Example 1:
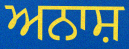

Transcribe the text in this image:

ਅਨਾਸ਼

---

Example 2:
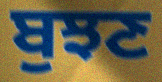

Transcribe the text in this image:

ਬੁਝਣ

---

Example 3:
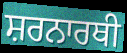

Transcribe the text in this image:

ਸ਼ਰਨਾਰਥੀ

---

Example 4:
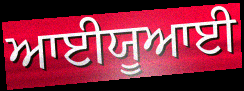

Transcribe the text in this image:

ਆਈਯੂਆਈ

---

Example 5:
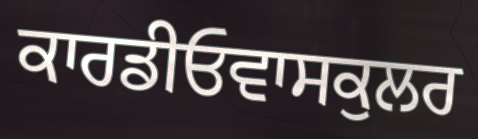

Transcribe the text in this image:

ਕਾਰਡੀਓਵਾਸਕੁਲਰ